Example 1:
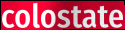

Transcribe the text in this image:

colostate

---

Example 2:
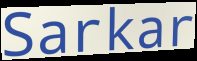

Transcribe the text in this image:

Sarkar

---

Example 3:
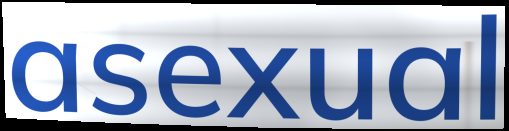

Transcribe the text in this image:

asexual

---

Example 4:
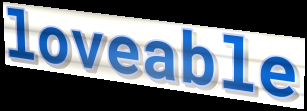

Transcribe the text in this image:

loveable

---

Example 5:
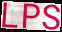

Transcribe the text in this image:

LPS